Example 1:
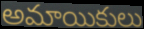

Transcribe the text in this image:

అమాయికులు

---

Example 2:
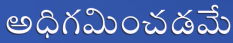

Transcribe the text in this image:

అధిగమించడమే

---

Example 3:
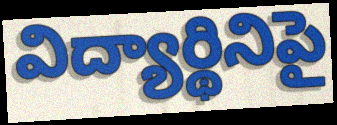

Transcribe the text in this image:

విద్యార్థినిపై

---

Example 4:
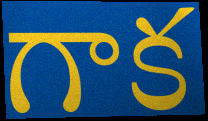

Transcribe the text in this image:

గాక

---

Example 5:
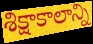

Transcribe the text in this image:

శిక్షాకాలాన్ని